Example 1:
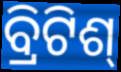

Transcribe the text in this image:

ବ୍ରିଟିଶ୍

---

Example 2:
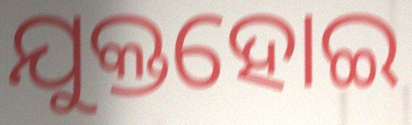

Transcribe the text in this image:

ଯୁକ୍ତହୋଇ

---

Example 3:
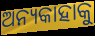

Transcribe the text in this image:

ଅନ୍ୟକାହାକୁ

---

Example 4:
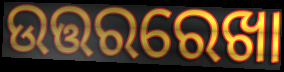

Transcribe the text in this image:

ଉତ୍ତରରେଖା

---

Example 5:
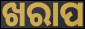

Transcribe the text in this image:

ଖରାପ